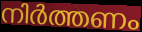
നിർത്തണം